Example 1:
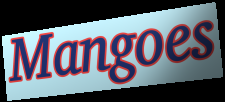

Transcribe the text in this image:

Mangoes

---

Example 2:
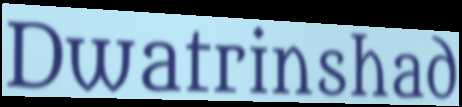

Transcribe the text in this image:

Dwatrinshad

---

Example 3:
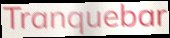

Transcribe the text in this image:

Tranquebar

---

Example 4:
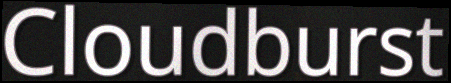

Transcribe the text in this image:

Cloudburst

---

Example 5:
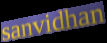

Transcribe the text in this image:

sanvidhan